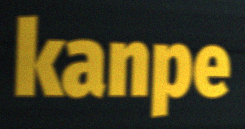
kanpe